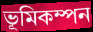
ভূমিকম্পন